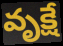
వృక్షే